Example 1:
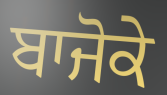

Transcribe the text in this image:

ਬਾਜੋਕੇ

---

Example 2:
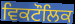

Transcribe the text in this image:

ਵਿਕਟੌਲਿਕ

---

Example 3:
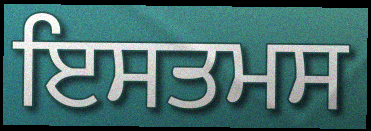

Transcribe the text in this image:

ਇਸਤਮਸ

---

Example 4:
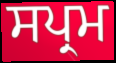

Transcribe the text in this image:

ਸਪ੍ਰਮ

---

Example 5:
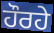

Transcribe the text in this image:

ਹੌਰਹੇ